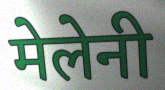
मेलेनी